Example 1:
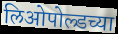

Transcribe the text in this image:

लिओपोल्डच्या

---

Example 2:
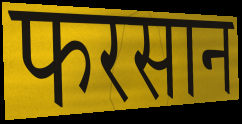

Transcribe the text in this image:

फरसान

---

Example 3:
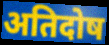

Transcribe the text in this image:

अतिदोष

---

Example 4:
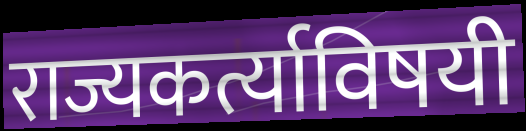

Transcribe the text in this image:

राज्यकर्त्याविषयी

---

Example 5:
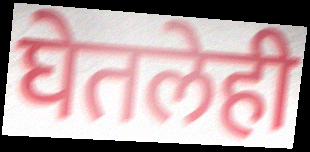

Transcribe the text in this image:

घेतलेही